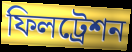
ফিলট্রেশন